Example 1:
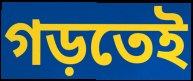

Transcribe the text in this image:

গড়তেই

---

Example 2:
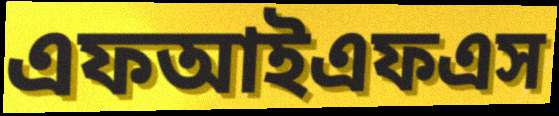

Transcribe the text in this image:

এফআইএফএস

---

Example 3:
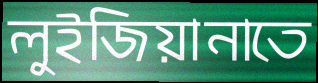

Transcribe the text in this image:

লুইজিয়ানাতে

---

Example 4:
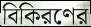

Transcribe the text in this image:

বিকিরণের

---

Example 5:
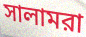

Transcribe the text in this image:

সালামরা